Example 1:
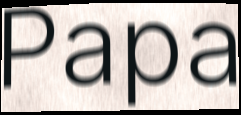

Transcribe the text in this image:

Papa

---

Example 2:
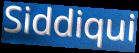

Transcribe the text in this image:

Siddiqui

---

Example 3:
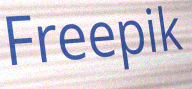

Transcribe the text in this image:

Freepik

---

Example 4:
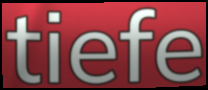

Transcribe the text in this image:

tiefe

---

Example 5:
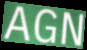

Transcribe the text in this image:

AGN